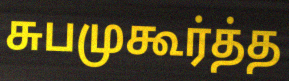
சுபமுகூர்த்த